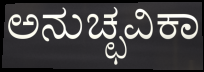
ಅನುಚ್ಛವಿಕಾ